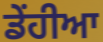
ਡੇਂਹੀਆ